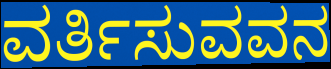
ವರ್ತಿಸುವವನ